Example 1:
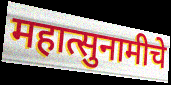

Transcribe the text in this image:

महात्सुनामीचे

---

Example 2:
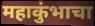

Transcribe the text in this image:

महाकुंभाचा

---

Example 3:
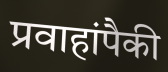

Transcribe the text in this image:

प्रवाहांपैकी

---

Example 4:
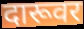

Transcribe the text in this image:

दारूवर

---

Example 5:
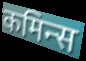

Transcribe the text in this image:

कमिन्स